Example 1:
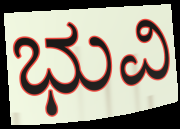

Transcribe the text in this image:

ಭುವಿ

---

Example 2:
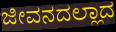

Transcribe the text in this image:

ಜೀವನದಲ್ಲಾದ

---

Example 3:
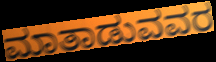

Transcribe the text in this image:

ಮಾತಾಡುವವರ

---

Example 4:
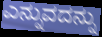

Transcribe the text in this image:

ಎನ್ನುವದನ್ನು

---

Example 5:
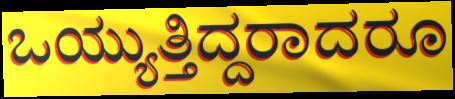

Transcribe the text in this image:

ಒಯ್ಯುತ್ತಿದ್ದರಾದರೂ